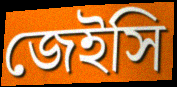
জেইসি